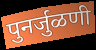
पुनर्जुळणी